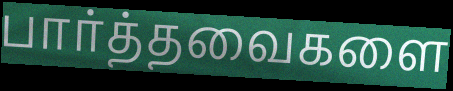
பார்த்தவைகளை